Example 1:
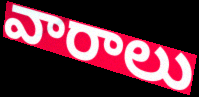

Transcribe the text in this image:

వారాలు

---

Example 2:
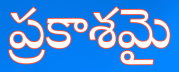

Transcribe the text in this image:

ప్రకాశమై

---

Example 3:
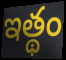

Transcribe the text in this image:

ఇత్థం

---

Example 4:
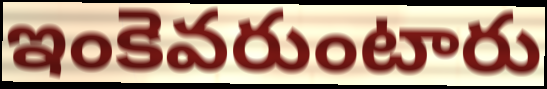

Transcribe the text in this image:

ఇంకెవరుంటారు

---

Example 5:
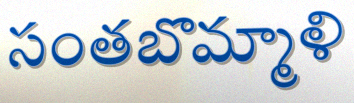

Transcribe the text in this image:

సంతబొమ్మాళి